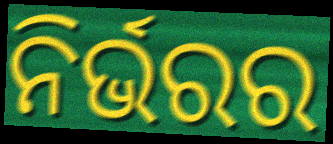
ନିର୍ଭରର